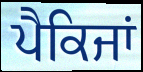
ਪੈਕਿਜਾਂ